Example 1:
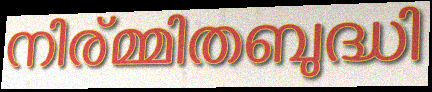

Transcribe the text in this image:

നിര്മ്മിതബുദ്ധി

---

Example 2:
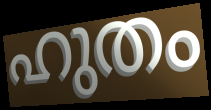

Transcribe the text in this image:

ഹുതം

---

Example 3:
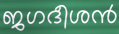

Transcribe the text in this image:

ജഗദീശൻ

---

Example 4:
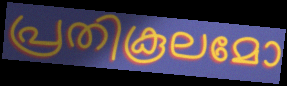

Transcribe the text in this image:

പ്രതികൂലമോ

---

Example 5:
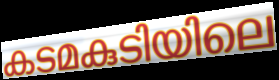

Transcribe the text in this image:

കടമകുടിയിലെ